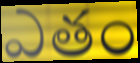
ఎతం